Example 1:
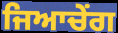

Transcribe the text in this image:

ਜਿਆਚੇਂਗ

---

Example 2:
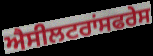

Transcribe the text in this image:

ਐਸੀਲਟਰਾਂਸਫਰੇਸ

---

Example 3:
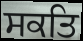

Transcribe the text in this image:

ਸਕਤਿ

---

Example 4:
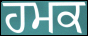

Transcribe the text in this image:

ਹਮਕ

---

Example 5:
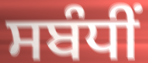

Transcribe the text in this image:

ਸਬੰਧੀਂ